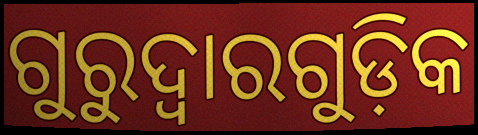
ଗୁରୁଦ୍ବାରଗୁଡ଼ିକ